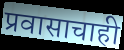
प्रवासाचाही